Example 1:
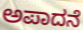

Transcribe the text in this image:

ಅಪಾದನೆ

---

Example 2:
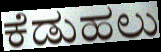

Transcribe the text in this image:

ಕೆಡುಹಲು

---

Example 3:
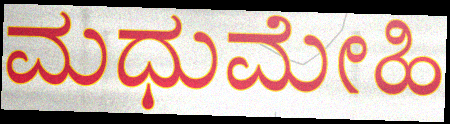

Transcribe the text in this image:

ಮಧುಮೇಹಿ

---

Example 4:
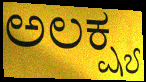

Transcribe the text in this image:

ಅಲಕ್ಷ್ಯ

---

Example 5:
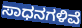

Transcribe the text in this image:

ಸಾಧನಗಳಿವೆ